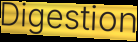
Digestion